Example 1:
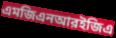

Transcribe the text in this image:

এমজিএনআরইজিএ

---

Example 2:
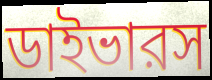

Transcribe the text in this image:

ডাইভারস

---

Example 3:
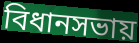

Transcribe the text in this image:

বিধানসভায়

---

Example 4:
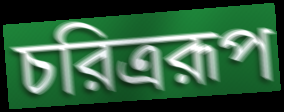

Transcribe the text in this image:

চরিত্ররূপ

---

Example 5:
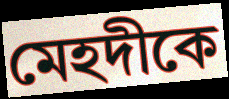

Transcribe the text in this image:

মেহদীকে